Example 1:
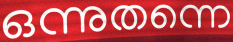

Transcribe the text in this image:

ഒന്നുതന്നെ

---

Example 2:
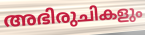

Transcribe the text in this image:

അഭിരുചികളും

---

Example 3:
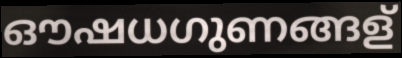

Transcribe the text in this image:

ഔഷധഗുണങ്ങള്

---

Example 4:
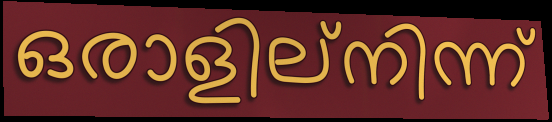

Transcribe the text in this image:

ഒരാളില്നിന്ന്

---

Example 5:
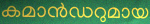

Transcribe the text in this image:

കമാൻഡറുമായ